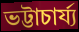
ভট্টাচার্য্য